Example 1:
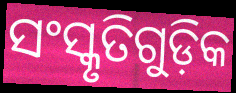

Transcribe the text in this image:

ସଂସ୍କୃତିଗୁଡ଼ିକ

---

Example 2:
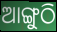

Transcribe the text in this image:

ଆଙ୍ଗୁଠି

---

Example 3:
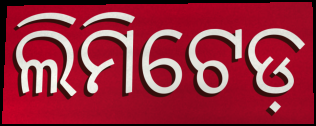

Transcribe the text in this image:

ଲିମିଟେଡ଼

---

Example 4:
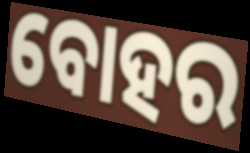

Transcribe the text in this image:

ବୋହର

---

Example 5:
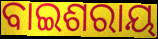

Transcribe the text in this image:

ବାଇଶରାୟ